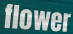
flower